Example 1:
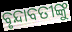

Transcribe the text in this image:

ବୃନ୍ଦାବତୀଙ୍କୁ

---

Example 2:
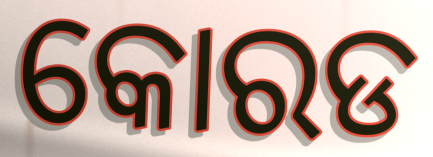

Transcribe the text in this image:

କୋରଡ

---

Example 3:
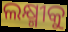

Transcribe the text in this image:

ଲକ୍ଷ୍ମୀକୁ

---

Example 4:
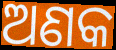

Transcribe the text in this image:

ଅଣକ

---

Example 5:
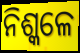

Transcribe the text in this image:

ନିଶ୍କଳେ